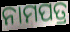
ନାମପତ୍ର